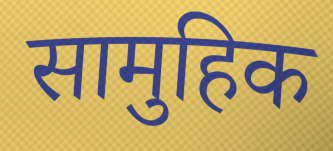
सामुहिक